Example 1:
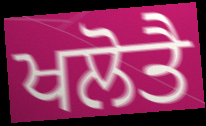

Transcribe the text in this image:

ਖਲੋਤੈ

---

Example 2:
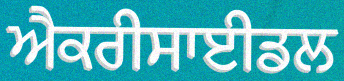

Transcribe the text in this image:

ਐਕਰੀਸਾਈਡਲ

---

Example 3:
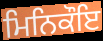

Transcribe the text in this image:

ਮਿਨਿਕੌਇ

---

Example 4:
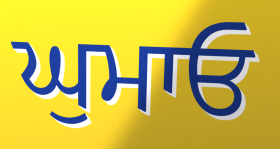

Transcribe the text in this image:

ਘੁਮਾਓ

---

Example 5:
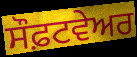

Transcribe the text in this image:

ਸੌਫ਼ਟਵੇਅਰ